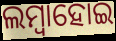
ଲମ୍ୱାହୋଇ